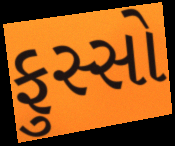
ફુસ્સો